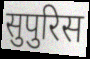
सुपुरिस